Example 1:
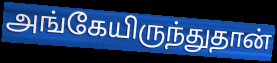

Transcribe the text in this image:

அங்கேயிருந்துதான்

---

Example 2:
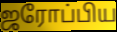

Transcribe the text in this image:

ஜரோப்பிய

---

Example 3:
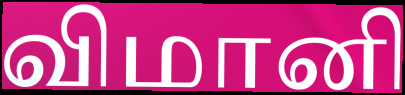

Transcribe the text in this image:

விமானி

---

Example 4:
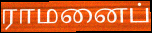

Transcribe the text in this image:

ராமனைப்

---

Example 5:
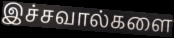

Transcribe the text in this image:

இச்சவால்களை